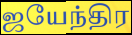
ஜயேந்திர